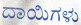
ದಾಯಿಗಳು